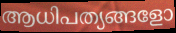
ആധിപത്യങ്ങളോ